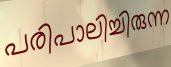
പരിപാലിച്ചിരുന്ന